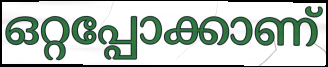
ഒറ്റപ്പോക്കാണ്